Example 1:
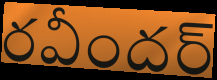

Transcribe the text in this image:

రవీందర్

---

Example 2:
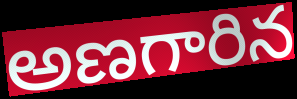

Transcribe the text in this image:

అణగారిన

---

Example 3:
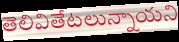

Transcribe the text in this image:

తెలివితేటలున్నాయని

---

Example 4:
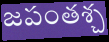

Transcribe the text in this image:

జపంతశ్చ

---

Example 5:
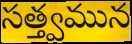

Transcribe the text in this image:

సత్త్వమున